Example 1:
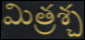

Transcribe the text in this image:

మిత్రశ్చ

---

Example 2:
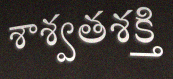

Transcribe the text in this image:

శాశ్వతశక్తి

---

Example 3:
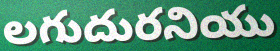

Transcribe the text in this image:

లగుదురనియు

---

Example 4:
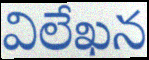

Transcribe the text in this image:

విలేఖన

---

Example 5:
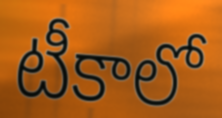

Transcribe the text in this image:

టీకాలో